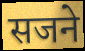
सजने